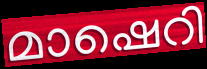
മാഷെറി